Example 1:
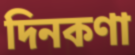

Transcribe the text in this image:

দিনকণা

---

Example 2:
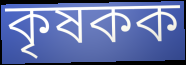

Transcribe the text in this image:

কৃষকক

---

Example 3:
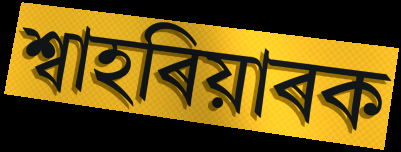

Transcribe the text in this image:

শ্বাহৰিয়াৰক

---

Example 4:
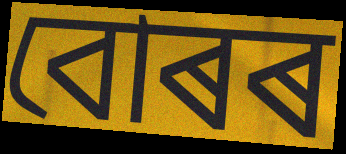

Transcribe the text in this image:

বোৰৰ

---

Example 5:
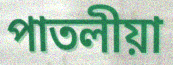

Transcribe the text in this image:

পাতলীয়া